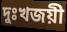
দুঃখজয়ী